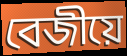
বেজীয়ে